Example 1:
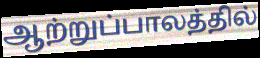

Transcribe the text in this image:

ஆற்றுப்பாலத்தில்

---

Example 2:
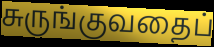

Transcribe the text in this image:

சுருங்குவதைப்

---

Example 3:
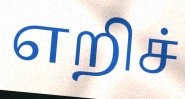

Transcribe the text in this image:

எறிச்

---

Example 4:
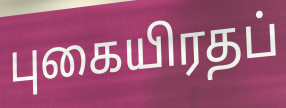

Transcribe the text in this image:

புகையிரதப்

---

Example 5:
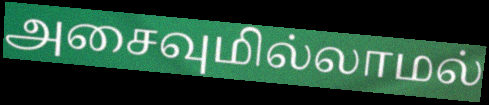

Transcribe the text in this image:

அசைவுமில்லாமல்